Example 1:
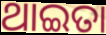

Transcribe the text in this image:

ଥାଇତା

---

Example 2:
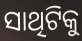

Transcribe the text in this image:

ସାଥିଟିକୁ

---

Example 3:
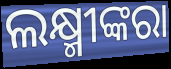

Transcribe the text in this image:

ଲକ୍ଷ୍ମୀଙ୍କରା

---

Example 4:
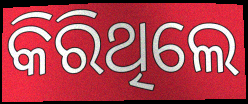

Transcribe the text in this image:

କିରିଥିଲେ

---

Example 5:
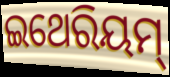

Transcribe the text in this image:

ଇଥେରିୟମ୍